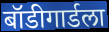
बॉडीगार्डला